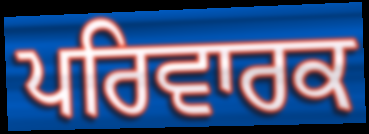
ਪਰਿਵਾਰਕ